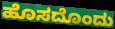
ಹೊಸದೊಂದು